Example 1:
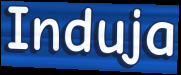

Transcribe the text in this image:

Induja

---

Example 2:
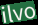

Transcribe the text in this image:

ilvo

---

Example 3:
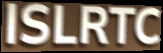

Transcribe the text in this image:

ISLRTC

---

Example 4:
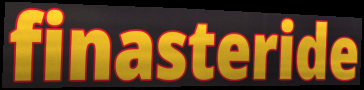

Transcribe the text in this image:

finasteride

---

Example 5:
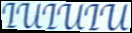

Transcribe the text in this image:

IUIUIU